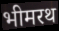
भीमरथ